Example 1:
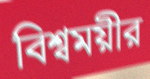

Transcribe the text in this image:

বিশ্বময়ীর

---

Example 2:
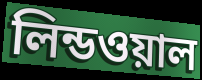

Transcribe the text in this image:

লিন্ডওয়াল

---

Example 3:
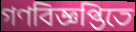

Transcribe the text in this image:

গণবিজ্ঞপ্তিতে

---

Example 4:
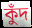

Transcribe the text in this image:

কুঁদ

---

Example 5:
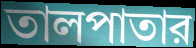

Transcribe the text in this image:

তালপাতার